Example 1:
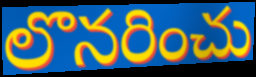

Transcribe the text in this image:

లొనరించు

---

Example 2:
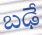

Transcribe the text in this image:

బఢే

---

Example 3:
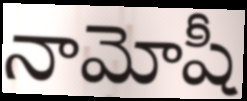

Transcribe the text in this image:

నామోషీ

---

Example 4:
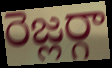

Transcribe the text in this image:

రెజ్లర్గా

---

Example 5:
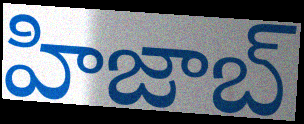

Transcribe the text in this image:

హిజాబ్